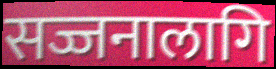
सज्जनालागि